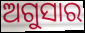
ଅଗୁସାର